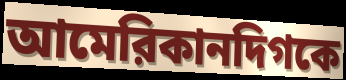
আমেরিকানদিগকে